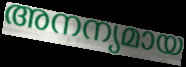
അനന്യമായ